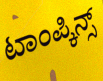
ಟಾಂಪ್ಕಿನ್ಸ್